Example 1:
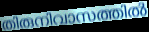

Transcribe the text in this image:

തിരുനിവാസത്തിൽ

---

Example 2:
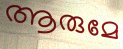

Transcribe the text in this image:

ആരുമേ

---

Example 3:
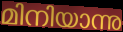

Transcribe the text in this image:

മിനിയാന്നു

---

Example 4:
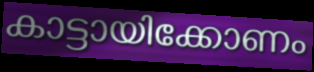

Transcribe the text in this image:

കാട്ടായിക്കോണം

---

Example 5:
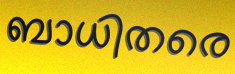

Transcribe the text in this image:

ബാധിതരെ